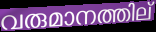
വരുമാനത്തില്